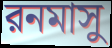
রনমাসু